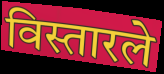
विस्तारले